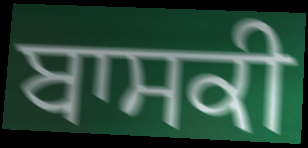
ਬਾਸਕੀ